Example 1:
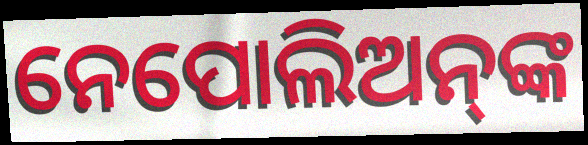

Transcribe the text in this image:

ନେପୋଲିଅନ୍‌ଙ୍କ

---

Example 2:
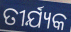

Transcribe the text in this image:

ତୀର୍ଯ୍ୟକ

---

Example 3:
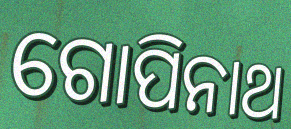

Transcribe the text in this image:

ଗୋପିନାଥ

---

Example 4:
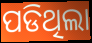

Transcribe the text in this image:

ପଡିଥିଲା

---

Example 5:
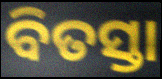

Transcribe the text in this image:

ବିତସ୍ତା